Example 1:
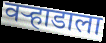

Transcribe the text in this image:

वऱ्हाडाला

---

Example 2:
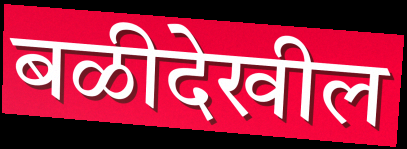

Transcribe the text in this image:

बळीदेखील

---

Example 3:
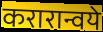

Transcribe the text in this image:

करारान्वये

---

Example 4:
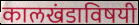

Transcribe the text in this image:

कालखंडाविषयी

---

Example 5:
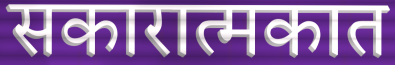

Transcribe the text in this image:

सकारात्मकात